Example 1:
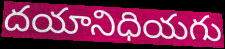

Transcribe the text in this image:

దయానిధియగు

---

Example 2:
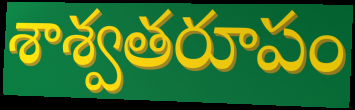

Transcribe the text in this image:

శాశ్వతరూపం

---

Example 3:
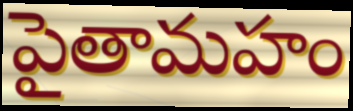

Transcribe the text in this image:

పైతామహం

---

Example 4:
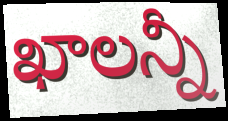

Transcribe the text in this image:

ఖాలన్నీ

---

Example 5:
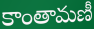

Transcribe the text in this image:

కాంతామణీ